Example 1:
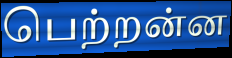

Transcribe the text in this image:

பெற்றன்ன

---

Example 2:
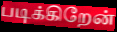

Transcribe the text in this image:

படிக்கிறேன்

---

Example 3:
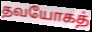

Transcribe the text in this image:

தவயோகத்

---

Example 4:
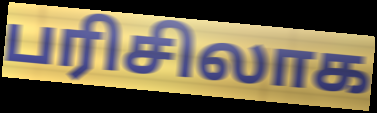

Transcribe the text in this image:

பரிசிலாக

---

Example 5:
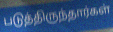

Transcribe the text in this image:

படுத்திருந்தார்கள்